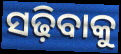
ସଢ଼ିବାକୁ